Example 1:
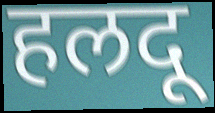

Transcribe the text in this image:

हलदू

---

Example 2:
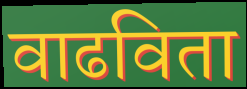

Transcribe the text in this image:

वाढविता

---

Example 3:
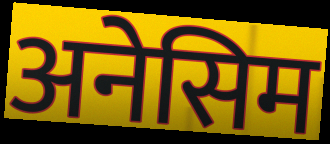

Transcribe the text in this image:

अनेसिम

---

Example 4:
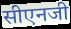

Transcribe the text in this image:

सीएनजी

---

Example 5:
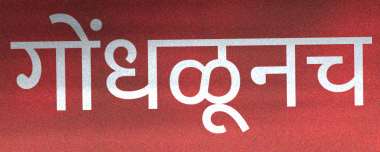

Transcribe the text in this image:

गोंधळूनच